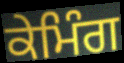
ਕੇਮਿੰਗ